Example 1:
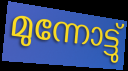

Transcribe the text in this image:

മുന്നോട്ടു്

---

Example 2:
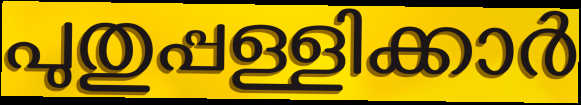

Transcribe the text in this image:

പുതുപ്പള്ളിക്കാർ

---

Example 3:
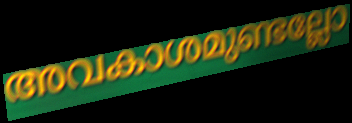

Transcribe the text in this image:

അവകാശമുണ്ടല്ലോ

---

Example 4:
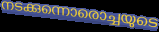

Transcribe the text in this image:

നടക്കുന്നൊരൊച്ചയുടെ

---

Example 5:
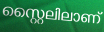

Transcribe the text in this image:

സ്റ്റൈലിലാണ്